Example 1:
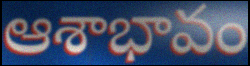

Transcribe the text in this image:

ఆశాభావం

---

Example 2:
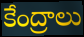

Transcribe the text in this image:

కేంద్రాలు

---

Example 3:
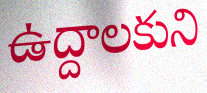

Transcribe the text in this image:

ఉద్దాలకుని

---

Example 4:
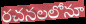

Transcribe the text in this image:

రచనలలోనూ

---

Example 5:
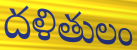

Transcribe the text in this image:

దళితులం